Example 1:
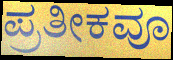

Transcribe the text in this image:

ಪ್ರತೀಕವೂ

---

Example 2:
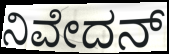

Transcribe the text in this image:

ನಿವೇದನ್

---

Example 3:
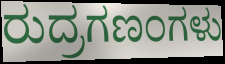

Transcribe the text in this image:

ರುದ್ರಗಣಂಗಳು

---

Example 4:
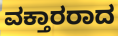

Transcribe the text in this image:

ವಕ್ತಾರರಾದ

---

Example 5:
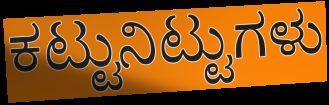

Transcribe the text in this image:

ಕಟ್ಟುನಿಟ್ಟುಗಳು